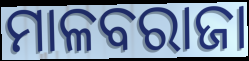
ମାଳବରାଜା